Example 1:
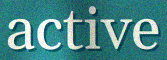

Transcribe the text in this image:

active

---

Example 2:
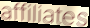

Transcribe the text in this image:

affiliates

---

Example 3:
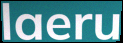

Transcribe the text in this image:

laeru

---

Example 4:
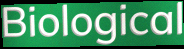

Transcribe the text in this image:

Biological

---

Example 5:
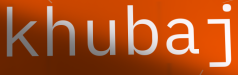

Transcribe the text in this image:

khubaj